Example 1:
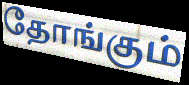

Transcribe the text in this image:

தோங்கும்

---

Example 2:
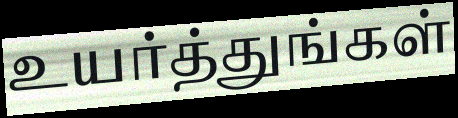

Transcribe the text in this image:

உயர்த்துங்கள்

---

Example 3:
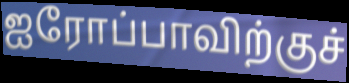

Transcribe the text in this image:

ஐரோப்பாவிற்குச்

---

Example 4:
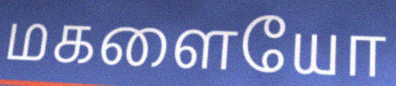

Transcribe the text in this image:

மகளையோ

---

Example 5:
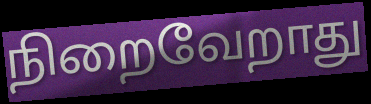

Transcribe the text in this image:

நிறைவேறாது